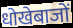
धोखेबाजों